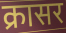
क्रासर